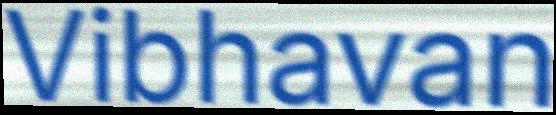
Vibhavan